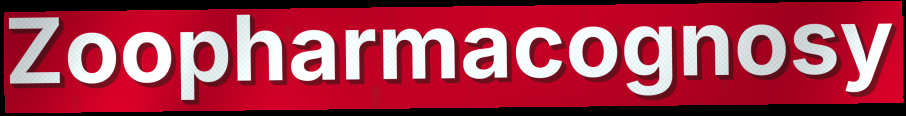
Zoopharmacognosy